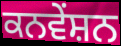
ਕਨਵੇਂਸ਼ਨ